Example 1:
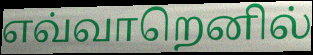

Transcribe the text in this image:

எவ்வாறெனில்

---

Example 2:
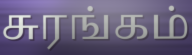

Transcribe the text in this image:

சுரங்கம்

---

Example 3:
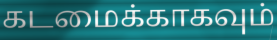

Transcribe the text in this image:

கடமைக்காகவும்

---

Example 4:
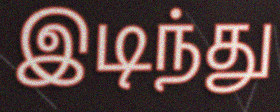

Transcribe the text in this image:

இடிந்து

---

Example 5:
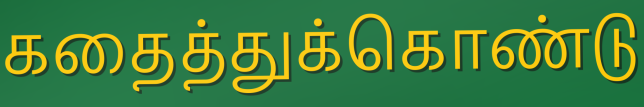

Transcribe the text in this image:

கதைத்துக்கொண்டு